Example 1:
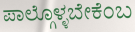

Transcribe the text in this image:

ಪಾಲ್ಗೊಳ್ಳಬೇಕೆಂಬ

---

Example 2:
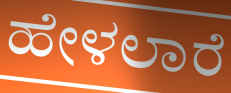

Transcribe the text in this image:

ಹೇಳಲಾರೆ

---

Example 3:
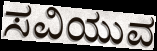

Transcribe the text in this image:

ಸವಿಯುವ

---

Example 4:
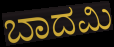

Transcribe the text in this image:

ಬಾದಮಿ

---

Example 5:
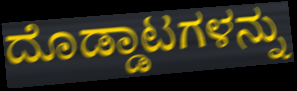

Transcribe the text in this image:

ದೊಡ್ಡಾಟಗಳನ್ನು